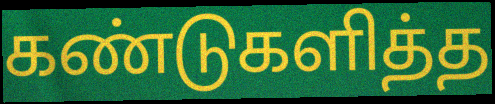
கண்டுகளித்த